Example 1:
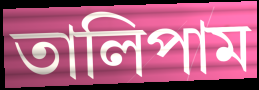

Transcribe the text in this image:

তালিপাম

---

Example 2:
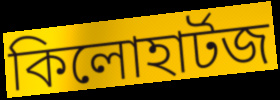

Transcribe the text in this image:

কিলোহার্টজ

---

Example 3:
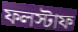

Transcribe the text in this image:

ফলস্টাফ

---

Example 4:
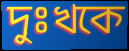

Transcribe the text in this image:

দুঃখকে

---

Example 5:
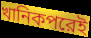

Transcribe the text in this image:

খানিকপরেই